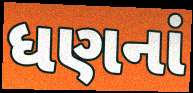
ધણનાં